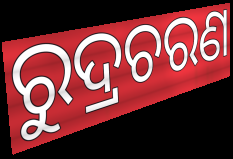
ରୁଦ୍ରଚରଣ